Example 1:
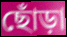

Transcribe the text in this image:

ছোঁড়া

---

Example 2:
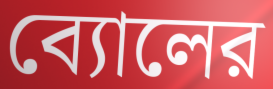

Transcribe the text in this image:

ব্যোলের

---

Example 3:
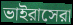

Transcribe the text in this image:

ভাইরাসেরা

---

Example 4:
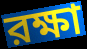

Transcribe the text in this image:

রক্ষা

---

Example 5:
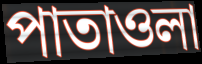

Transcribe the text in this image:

পাতাওলা